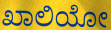
ಖಾಲಿಯೋ